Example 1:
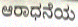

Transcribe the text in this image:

ಆರಾಧನೆಯ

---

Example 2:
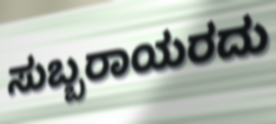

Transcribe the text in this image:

ಸುಬ್ಬರಾಯರದು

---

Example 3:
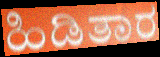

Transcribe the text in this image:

ಹಿಡಿತಾರ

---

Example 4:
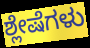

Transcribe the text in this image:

ಶ್ಲೇಷೆಗಳು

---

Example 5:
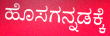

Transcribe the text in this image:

ಹೊಸಗನ್ನಡಕ್ಕೆ